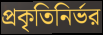
প্রকৃতিনির্ভর